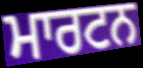
ਮਾਰਟਨ